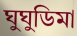
ঘুঘুডিমা